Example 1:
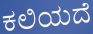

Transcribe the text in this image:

ಕಲಿಯದೆ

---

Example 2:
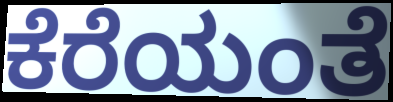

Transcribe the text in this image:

ಕೆರೆಯಂತೆ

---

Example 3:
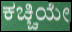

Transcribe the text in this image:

ಕಚ್ಚಿಯೇ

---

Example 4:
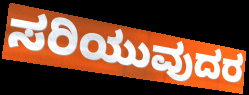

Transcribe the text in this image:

ಸರಿಯುವುದರ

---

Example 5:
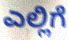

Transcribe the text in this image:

ಎಲ್ಲಿಗೆ